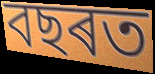
বছৰত